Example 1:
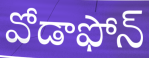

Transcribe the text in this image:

వోడాఫోన్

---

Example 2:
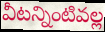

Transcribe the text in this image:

వీటన్నింటివల్ల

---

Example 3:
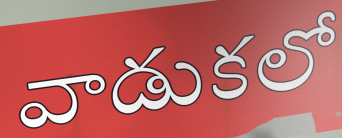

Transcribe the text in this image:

వాడుకలో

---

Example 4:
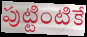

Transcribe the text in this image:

పుట్టింటికే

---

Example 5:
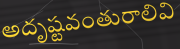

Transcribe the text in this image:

అదృష్టవంతురాలివి